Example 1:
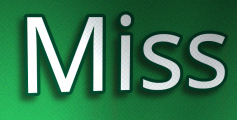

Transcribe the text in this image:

Miss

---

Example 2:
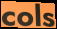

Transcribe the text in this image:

cols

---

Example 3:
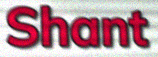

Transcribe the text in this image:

Shant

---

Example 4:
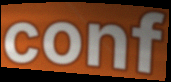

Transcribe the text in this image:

conf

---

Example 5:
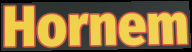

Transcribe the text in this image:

Hornem